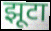
झूटा